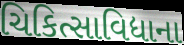
ચિકિત્સાવિદ્યાના